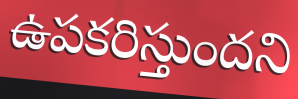
ఉపకరిస్తుందని